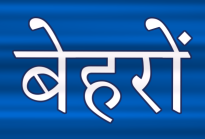
बेहरों